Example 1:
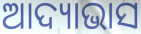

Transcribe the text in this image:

ଆଦ୍ୟାଭାସ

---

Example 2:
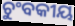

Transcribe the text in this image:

ଚୁଂବକୀୟ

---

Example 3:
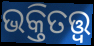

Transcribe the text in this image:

ଭକ୍ତିତତ୍ତ୍ୱ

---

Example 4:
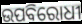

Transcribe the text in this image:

ଉପବିରୋଧୀ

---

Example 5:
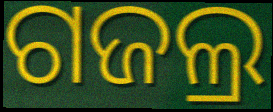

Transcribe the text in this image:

ଗଜଲ୍ର